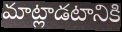
మాట్లాడటానికి